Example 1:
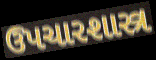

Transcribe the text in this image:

ઉપચારશાસ્ત્ર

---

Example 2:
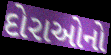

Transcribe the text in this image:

દોરાઓનો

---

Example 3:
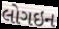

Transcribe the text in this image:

લોગઇન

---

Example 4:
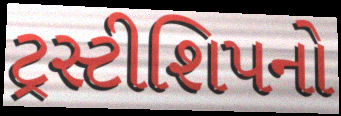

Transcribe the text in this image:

ટ્રસ્ટીશિપનો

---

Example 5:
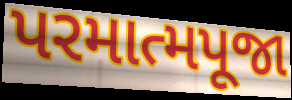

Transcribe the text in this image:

પરમાત્મપૂજા